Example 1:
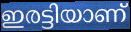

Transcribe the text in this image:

ഇരട്ടിയാണ്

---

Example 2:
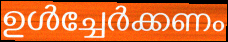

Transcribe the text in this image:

ഉൾച്ചേർക്കണം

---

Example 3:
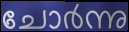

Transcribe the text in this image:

ചോർന്നു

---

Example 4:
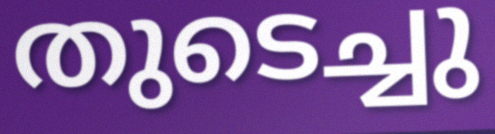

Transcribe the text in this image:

തുടെച്ചു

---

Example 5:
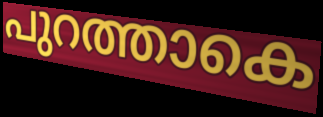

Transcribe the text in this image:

പുറത്താകെ